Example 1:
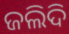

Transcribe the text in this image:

ଜଲିଦି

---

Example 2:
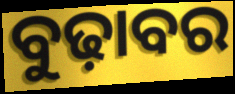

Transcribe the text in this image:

ବୁଢ଼ାବର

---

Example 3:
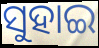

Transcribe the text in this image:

ସୁହାଇ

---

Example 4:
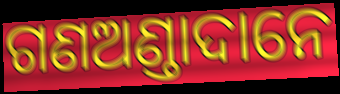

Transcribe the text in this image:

ଗଣଅଣ୍ଡାଦାନେ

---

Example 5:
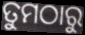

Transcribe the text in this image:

ତୁମଠାରୁ